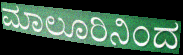
ಮಾಲೂರಿನಿಂದ